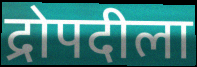
द्रोपदीला